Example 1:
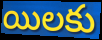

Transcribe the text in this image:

యిలకు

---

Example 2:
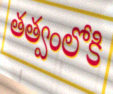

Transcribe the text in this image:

తత్వంలోకి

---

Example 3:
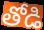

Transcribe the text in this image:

తోడి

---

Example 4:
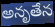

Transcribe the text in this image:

అనృతేన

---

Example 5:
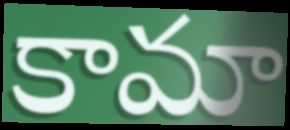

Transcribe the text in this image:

కామా